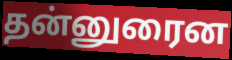
தன்னுரைன